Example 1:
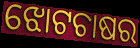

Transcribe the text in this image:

ଝୋଟଚାଷର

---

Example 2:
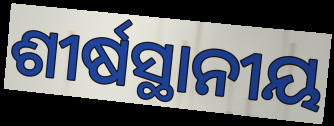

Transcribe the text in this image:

ଶୀର୍ଷସ୍ଥାନୀୟ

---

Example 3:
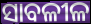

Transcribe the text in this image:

ସାବଳୀଳ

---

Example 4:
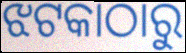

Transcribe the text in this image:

ଝଟକାଠାରୁ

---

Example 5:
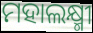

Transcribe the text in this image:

ମହାଲକ୍ଷ୍ମୀ